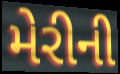
મેરીની